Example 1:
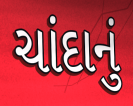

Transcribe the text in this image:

ચાંદાનું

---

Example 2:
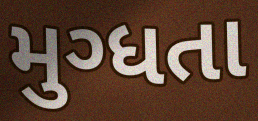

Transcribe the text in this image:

મુગ્ધતા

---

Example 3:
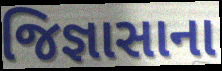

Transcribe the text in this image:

જિજ્ઞાસાના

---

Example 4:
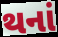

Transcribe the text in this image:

થનાં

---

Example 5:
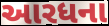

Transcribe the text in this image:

આરધના